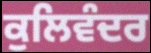
ਕੁਲਿਵੰਦਰ